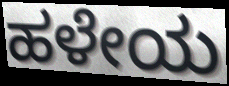
ಹಳೇಯ